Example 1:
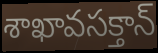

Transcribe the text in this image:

శాఖావసక్తాన్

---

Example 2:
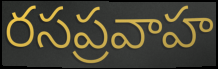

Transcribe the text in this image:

రసప్రవాహ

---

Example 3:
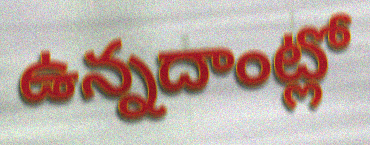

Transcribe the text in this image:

ఉన్నదాంట్లో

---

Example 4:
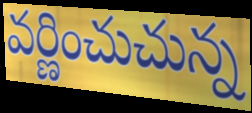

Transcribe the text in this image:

వర్ణించుచున్న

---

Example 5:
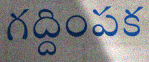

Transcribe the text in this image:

గద్దింపక